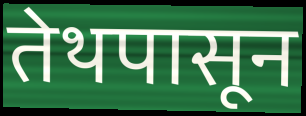
तेथपासून